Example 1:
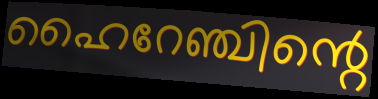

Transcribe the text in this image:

ഹൈറേഞ്ചിന്റെ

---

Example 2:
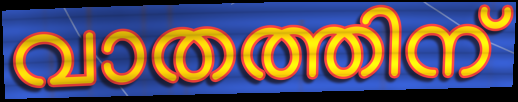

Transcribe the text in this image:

വാതത്തിന്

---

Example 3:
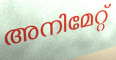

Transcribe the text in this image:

അനിമേറ്റ്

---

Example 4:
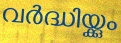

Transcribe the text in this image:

വർദ്ധിയ്ക്കും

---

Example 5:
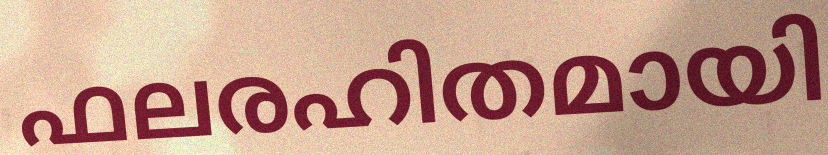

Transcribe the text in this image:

ഫലരഹിതമായി